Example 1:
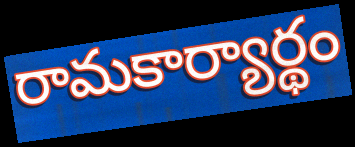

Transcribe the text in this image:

రామకార్యార్థం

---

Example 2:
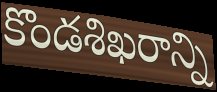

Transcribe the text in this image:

కొండశిఖరాన్ని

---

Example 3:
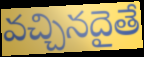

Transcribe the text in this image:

వచ్చినదైతే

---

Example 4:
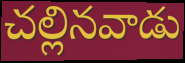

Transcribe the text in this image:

చల్లినవాడు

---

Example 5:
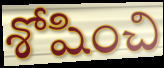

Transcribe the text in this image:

శోషించి